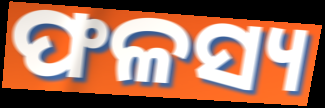
ଫଳସ୍ୟ